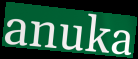
anuka